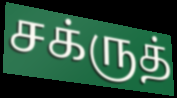
சக்ருத்